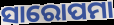
ସାରୋପମା